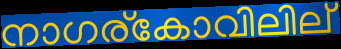
നാഗര്കോവിലില്